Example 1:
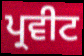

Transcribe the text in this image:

ਪ੍ਰਵੀਟ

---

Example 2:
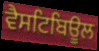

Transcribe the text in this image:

ਵੈਸਟਿਬਿਊਲ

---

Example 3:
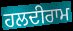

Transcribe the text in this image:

ਹਲਦੀਰਾਮ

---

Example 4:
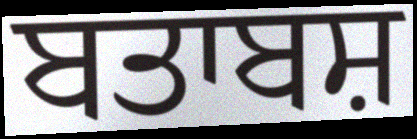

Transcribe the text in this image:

ਬਤਾਬਸ਼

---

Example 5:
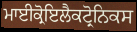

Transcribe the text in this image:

ਮਾਈਕ੍ਰੋਇਲੈਕਟ੍ਰੋਨਿਕਸ